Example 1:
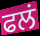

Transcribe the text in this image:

ਫਲਂ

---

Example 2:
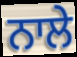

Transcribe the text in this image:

ਨਾਲੇ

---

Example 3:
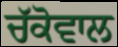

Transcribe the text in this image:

ਚੱਕੋਵਾਲ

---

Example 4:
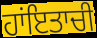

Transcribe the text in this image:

ਹਾਂਇਤਾਚੀ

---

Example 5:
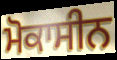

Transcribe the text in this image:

ਮੋਕਾਸੀਨ